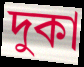
দুকা